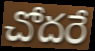
చోదరే